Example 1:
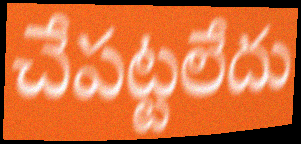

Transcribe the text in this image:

చేపట్టలేదు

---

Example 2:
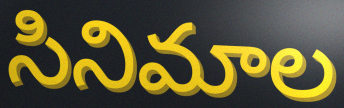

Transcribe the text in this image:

సినిమాల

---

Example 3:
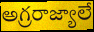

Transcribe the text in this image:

అగ్రరాజ్యాలే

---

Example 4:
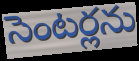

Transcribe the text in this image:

సెంటర్లను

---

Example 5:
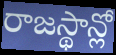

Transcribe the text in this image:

రాజస్థాన్లో